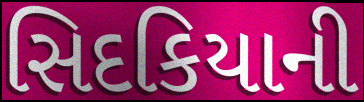
સિદકિયાની